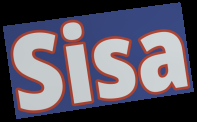
Sisa